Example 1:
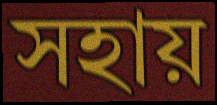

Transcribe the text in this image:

সহায়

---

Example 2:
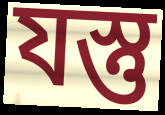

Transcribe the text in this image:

যস্তু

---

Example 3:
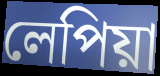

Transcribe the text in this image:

লেপিয়া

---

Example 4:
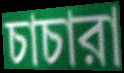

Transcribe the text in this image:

চাচারা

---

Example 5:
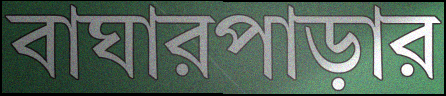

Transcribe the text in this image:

বাঘারপাড়ার